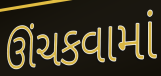
ઊંચકવામાં